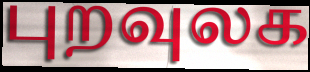
புறவுலக